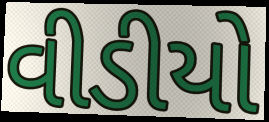
વીડીયો